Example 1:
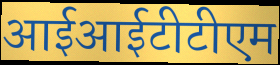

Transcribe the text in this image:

आईआईटीटीएम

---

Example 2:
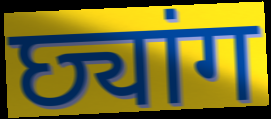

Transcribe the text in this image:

छ्यांग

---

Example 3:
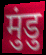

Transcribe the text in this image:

मुंडु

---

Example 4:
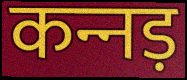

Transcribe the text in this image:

कन्‍नड़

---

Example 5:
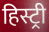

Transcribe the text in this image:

हिस्ट्री